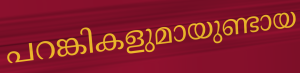
പറങ്കികളുമായുണ്ടായ